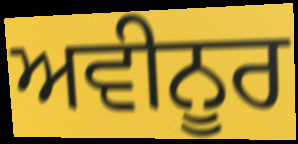
ਅਵੀਨੂਰ